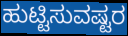
ಹುಟ್ಟಿಸುವಷ್ಟರ